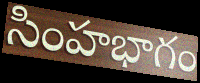
సింహభాగం